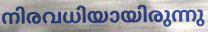
നിരവധിയായിരുന്നു